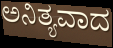
ಅನಿತ್ಯವಾದ